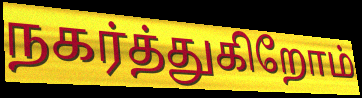
நகர்த்துகிறோம்